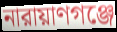
নারায়াণগঞ্জে